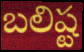
బలిష్ట